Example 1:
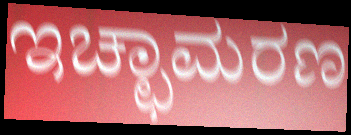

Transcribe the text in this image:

ಇಚ್ಛಾಮರಣ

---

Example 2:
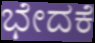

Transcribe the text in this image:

ಭೇದಕೆ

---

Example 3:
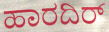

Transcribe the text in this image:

ಹಾರದಿರ್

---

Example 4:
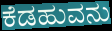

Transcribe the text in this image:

ಕೆಡಹುವನು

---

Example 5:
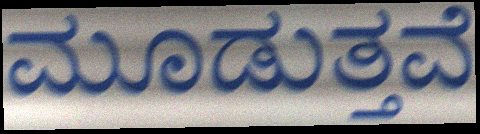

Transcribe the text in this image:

ಮೂಡುತ್ತವೆ